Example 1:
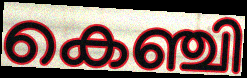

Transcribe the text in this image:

കെഞ്ചി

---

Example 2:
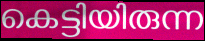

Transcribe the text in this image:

കെട്ടിയിരുന്ന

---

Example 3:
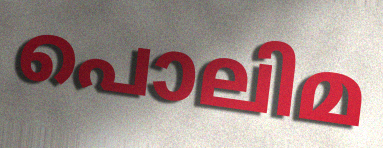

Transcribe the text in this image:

പൊലിമ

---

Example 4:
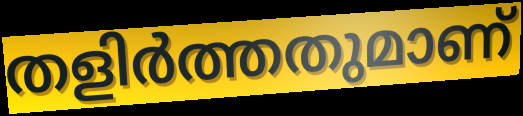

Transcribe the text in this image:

തളിർത്തതുമാണ്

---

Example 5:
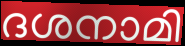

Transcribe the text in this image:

ദശനാമി